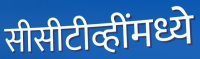
सीसीटीव्हींमध्ये